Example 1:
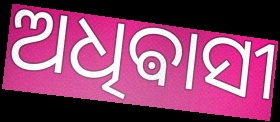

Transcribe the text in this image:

ଅଧିଵାସୀ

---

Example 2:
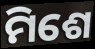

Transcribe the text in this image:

ମିଶେ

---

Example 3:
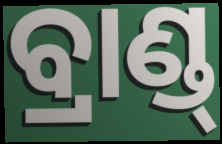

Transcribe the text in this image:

ବ୍ରାଣ୍ଡ୍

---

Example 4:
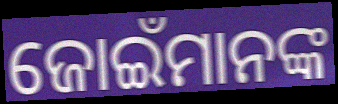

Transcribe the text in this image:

ଜୋଇଁମାନଙ୍କ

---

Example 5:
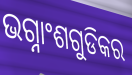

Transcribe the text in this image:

ଭଗ୍ନାଂଶଗୁଡିକର